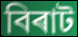
বিৰাট